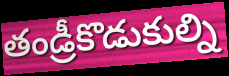
తండ్రీకొడుకుల్ని